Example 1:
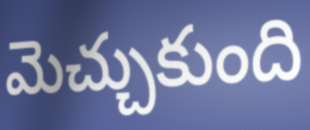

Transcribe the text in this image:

మెచ్చుకుంది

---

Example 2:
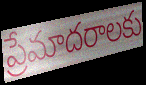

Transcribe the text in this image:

ప్రేమాదరాలకు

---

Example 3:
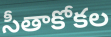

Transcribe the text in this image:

సీతాకోకల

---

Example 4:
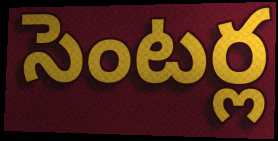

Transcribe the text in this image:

సెంటర్ల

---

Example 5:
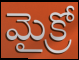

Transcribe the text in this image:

మైక్రో